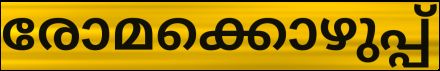
രോമക്കൊഴുപ്പ്